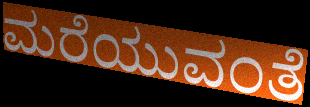
ಮರೆಯುವಂತೆ